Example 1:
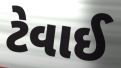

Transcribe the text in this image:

ટેવાઈ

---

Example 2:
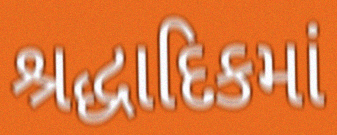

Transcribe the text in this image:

શ્રદ્ધાદિકમાં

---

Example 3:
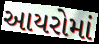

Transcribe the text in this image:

આયરોમાં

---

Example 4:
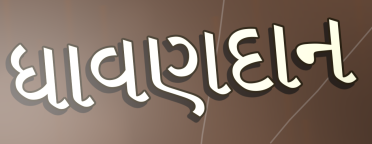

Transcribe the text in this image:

ધાવણદાન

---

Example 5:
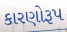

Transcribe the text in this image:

કારણોરૂપ